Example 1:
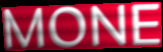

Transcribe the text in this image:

MONE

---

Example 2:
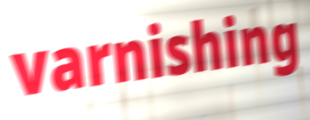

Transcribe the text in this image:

varnishing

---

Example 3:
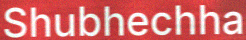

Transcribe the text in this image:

Shubhechha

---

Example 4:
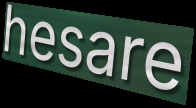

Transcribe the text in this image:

hesare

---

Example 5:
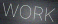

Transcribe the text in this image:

WORK